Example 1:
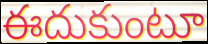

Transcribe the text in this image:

ఈదుకుంటూ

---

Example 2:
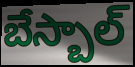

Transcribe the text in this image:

బేస్బాల్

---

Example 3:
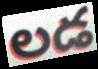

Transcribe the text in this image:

లడ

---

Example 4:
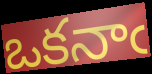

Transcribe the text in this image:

ఒకనాఁ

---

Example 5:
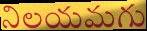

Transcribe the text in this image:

నిలయమగు